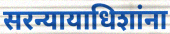
सरन्यायाधिशांना